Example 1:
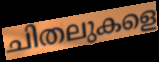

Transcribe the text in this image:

ചിതലുകളെ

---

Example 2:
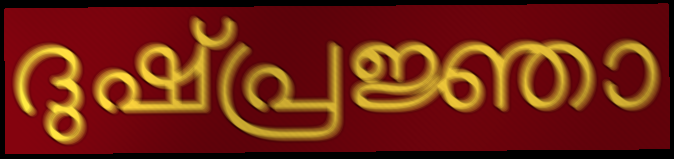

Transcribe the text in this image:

ദുഷ്പ്രജ്ഞാ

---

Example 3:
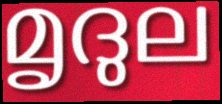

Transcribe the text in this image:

മൃദുല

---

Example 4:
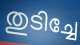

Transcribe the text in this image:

തുടിച്ചേ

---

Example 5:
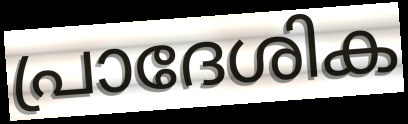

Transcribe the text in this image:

പ്രാദേശിക